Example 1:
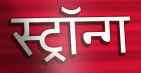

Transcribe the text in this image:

स्ट्रॉन्ग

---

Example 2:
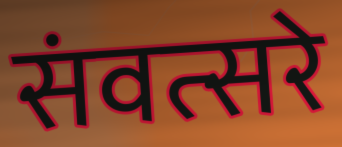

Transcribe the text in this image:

संवत्सरे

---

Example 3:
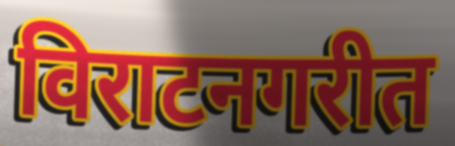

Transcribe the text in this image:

विराटनगरीत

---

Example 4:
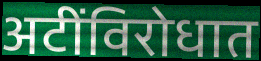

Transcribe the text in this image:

अटींविरोधात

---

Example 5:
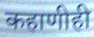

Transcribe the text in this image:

कहाणीही